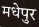
मधेपुर